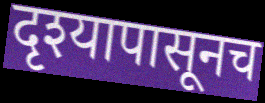
दृश्यापासूनच